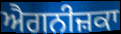
ਐਗਨੀਜ਼ਕਾ